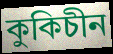
কুকিচীন